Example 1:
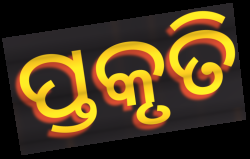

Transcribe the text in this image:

ପ୍ତକୃତି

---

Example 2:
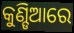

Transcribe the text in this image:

କୁଣ୍ଡିଆରେ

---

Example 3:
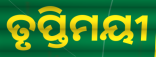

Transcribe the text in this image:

ତୃପ୍ତିମୟୀ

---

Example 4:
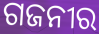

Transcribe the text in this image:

ଗଜନୀର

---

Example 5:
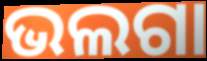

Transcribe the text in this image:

ଭଲଗା